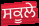
ਸਕੂਲੇ